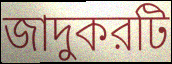
জাদুকরটি